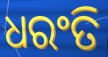
ଧରଂତି